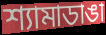
শ্যামাডাঙা